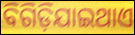
ବିଗିଡ଼ିଯାଇଥାଏ